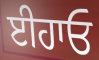
ਈਹਾਓ